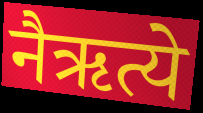
नैऋत्ये